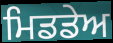
ਮਿਡਡੇਅ